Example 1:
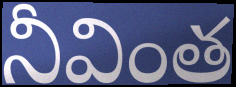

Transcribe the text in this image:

నీవింత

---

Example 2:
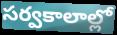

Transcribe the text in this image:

సర్వకాలాల్లో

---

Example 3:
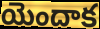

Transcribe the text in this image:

యెందాక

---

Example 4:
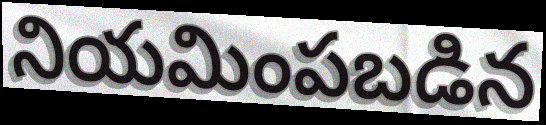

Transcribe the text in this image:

నియమింపబడిన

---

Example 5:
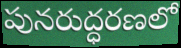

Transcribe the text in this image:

పునరుద్ధరణలో